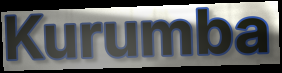
Kurumba